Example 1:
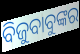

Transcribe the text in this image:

ବିଜୁବାବୁଙ୍କର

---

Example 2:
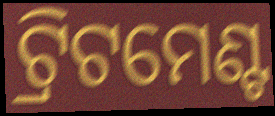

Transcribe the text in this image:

ଟ୍ରିଟମେଣ୍ଟ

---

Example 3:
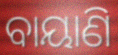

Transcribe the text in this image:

ବାୟାଣି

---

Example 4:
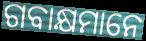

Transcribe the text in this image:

ଗବାକ୍ଷମାନେ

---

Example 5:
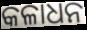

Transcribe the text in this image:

କଳାଧନ